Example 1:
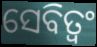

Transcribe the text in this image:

ସେବିତ୍ୱଂ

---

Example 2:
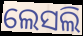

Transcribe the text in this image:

ଲେସଲି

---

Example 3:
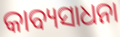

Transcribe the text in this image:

କାବ୍ୟସାଧନା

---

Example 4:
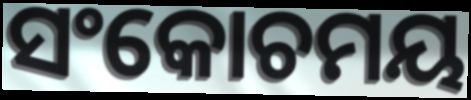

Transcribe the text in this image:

ସଂକୋଚମୟ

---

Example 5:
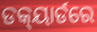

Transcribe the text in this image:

ଡକ୍‍ୟାର୍ଡରେ